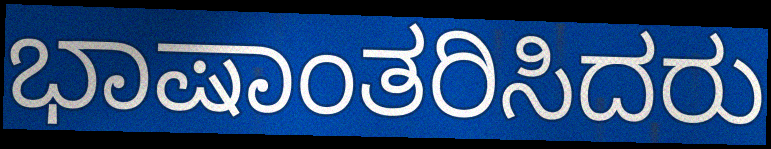
ಭಾಷಾಂತರಿಸಿದರು